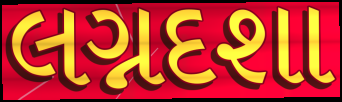
લગ્નદશા